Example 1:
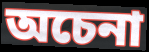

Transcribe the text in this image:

অচেনা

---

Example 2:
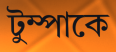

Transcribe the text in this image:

টুম্পাকে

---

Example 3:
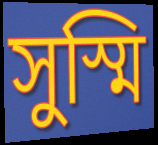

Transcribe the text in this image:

সুস্মি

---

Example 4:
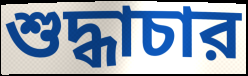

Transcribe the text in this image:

শুদ্ধাচার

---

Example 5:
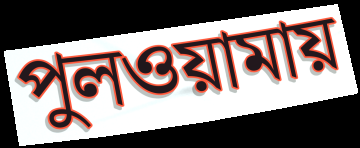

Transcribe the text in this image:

পুলওয়ামায়